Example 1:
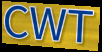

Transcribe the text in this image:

CWT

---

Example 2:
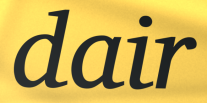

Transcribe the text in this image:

dair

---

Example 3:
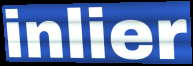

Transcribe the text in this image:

inlier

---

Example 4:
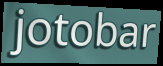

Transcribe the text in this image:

jotobar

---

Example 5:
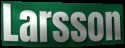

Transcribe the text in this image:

Larsson